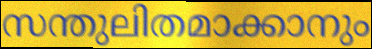
സന്തുലിതമാക്കാനും